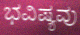
ಭವಿಷ್ಯವು